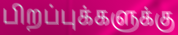
பிறப்புக்களுக்கு